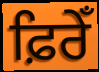
ਫ਼ਿਰੇਁ